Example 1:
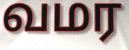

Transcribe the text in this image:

வமர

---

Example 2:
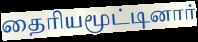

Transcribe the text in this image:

தைரியமூட்டினார்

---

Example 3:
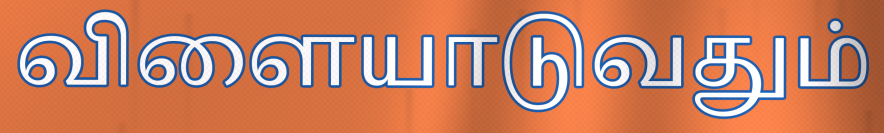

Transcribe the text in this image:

விளையாடுவதும்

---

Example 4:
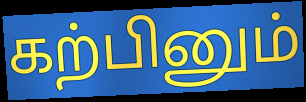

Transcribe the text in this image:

கற்பினும்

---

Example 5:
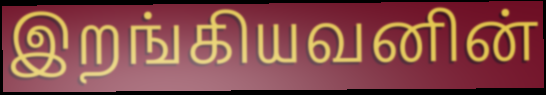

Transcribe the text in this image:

இறங்கியவனின்